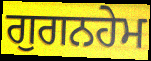
ਗੁਗਨਹੇਮ